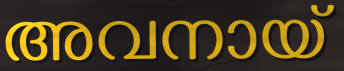
അവനായ്